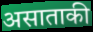
असाताकी